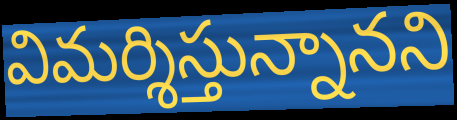
విమర్శిస్తున్నానని